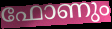
ഫോണും